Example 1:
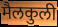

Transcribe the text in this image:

मैलकुली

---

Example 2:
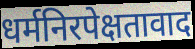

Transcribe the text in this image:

धर्मनिरपेक्षतावाद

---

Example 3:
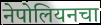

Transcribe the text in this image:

नेपोलियनचा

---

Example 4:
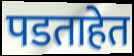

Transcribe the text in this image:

पडताहेत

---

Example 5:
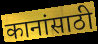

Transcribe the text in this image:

कानांसाठी